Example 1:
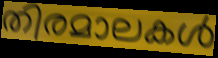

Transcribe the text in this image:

തിരമാലകൾ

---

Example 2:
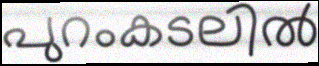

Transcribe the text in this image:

പുറംകടലിൽ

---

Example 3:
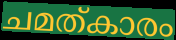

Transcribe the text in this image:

ചമത്കാരം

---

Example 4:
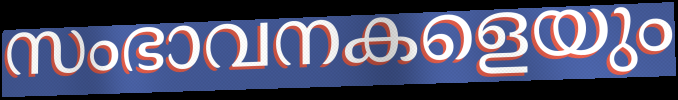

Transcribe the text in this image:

സംഭാവനകളെയും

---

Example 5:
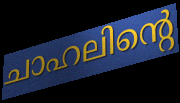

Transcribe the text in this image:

ചാഹലിന്റെ